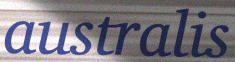
australis